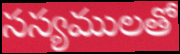
సస్యములతో